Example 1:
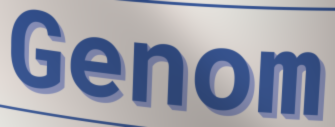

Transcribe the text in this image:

Genom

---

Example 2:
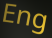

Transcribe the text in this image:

Eng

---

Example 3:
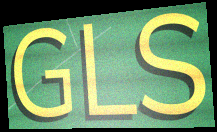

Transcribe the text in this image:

GLS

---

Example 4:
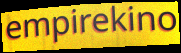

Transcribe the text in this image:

empirekino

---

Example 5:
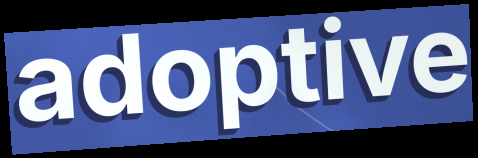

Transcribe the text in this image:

adoptive